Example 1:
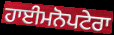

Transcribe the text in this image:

ਹਾਈਮਨੋਪਟੇਰਾ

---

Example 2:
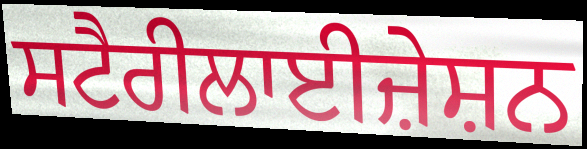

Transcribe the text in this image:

ਸਟੈਰੀਲਾਈਜ਼ੇਸ਼ਨ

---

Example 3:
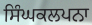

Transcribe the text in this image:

ਸਿੰਘਕਲਪਨਾ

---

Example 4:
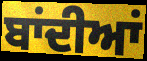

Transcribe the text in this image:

ਬਾਂਦੀਆਂ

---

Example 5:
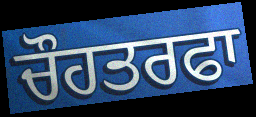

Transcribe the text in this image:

ਚੌਹਤਰਫਾ